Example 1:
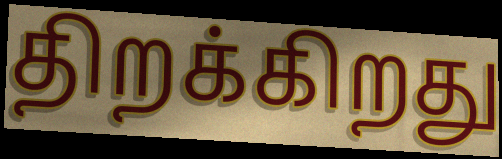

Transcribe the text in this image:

திறக்கிறது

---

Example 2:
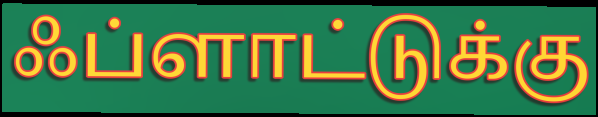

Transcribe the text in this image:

ஃப்ளாட்டுக்கு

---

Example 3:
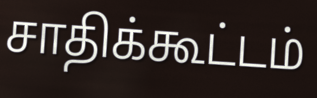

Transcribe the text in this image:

சாதிக்கூட்டம்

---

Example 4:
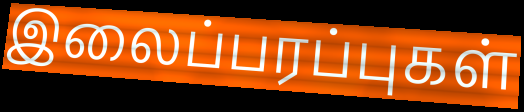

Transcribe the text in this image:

இலைப்பரப்புகள்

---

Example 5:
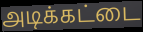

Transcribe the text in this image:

அடிக்கட்டை